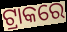
ଟ୍ରାକରେ